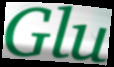
Glu